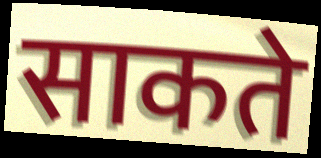
साकते